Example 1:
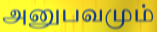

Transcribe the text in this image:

அனுபவமும்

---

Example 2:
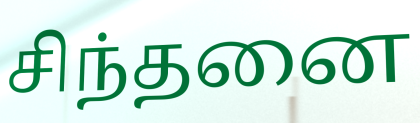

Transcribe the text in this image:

சிந்தனை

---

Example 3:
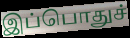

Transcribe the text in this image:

இப்பொதுச்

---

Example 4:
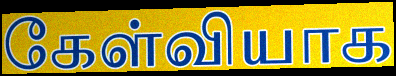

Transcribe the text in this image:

கேள்வியாக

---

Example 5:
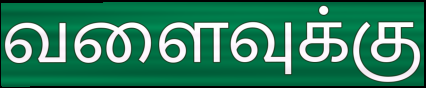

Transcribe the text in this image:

வளைவுக்கு